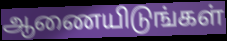
ஆணையிடுங்கள்